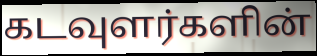
கடவுளர்களின்